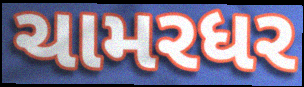
ચામરધર